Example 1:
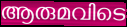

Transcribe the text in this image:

ആരുമവിടെ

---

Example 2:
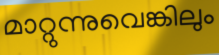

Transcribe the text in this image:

മാറ്റുന്നുവെങ്കിലും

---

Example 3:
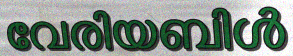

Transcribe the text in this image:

വേരിയബിൾ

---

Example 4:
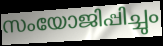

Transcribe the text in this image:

സംയോജിപ്പിച്ചും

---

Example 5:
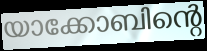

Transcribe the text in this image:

യാക്കോബിന്റെ